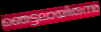
ഞെട്ടലായിരുന്നു